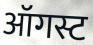
ऑगस्ट